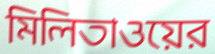
মিলিতাওয়ের